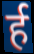
र्ह